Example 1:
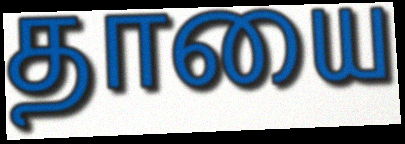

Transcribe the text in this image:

தாயை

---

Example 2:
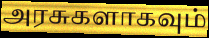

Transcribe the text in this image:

அரசுகளாகவும்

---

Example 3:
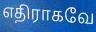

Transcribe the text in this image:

எதிராகவே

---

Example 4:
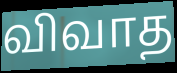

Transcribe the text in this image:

விவாத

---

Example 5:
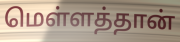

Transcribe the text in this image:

மெள்ளத்தான்